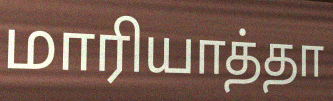
மாரியாத்தா